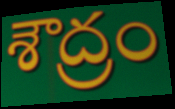
శౌద్రం